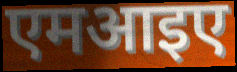
एमआइए